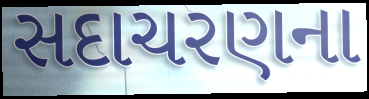
સદાચરણના